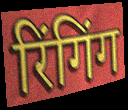
रिंगिंग